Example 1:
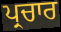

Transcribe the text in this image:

ਪ੍ਰਚਾਰ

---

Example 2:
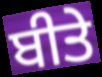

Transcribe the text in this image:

ਬੀਤੇ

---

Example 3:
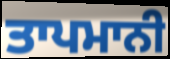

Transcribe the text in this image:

ਤਾਪਮਾਨੀ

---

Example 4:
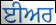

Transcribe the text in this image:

ਈਅਰ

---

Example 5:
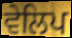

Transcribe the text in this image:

ਵੇਲਿਪ